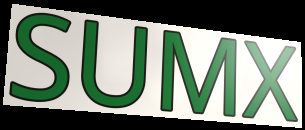
SUMX